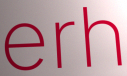
erh